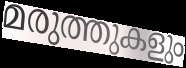
മരുത്തുകളും